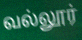
வல்லூர்